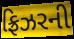
ફ્રિઝરની